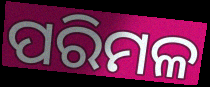
ପରିମଳ